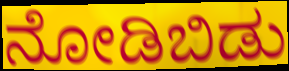
ನೋಡಿಬಿಡು